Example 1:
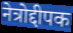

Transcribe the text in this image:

नेत्रोद्दीपक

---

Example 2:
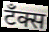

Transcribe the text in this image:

टँक्स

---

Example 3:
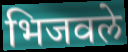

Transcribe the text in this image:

भिजवले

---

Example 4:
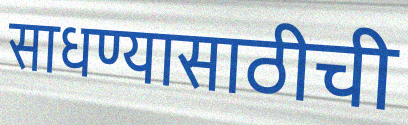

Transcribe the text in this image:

साधण्यासाठीची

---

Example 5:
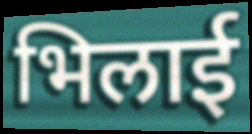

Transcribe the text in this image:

भिलाई